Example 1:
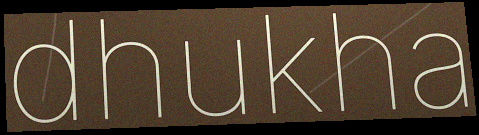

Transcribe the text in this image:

dhukha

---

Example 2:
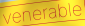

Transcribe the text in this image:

venerable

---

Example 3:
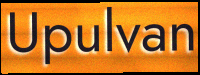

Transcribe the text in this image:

Upulvan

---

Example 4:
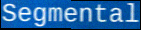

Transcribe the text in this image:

Segmental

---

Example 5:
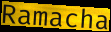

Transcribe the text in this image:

Ramacha